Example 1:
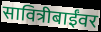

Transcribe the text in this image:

सावित्रीबाईंवर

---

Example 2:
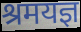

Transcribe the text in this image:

श्रमयज्ञ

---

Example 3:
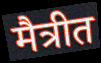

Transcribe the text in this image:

मैत्रीत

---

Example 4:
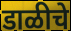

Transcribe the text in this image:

डाळीचे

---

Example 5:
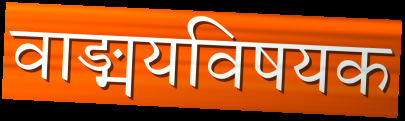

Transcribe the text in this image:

वाङ्मयविषयक